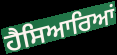
ਹੈਸਿਆਰਿਆਂ